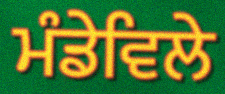
ਮੰਡੇਵਿਲੇ